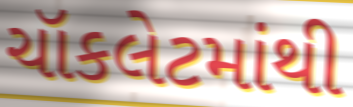
ચૉકલેટમાંથી